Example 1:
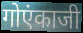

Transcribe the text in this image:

गोएंकाजी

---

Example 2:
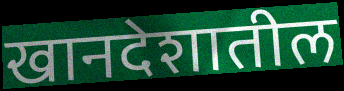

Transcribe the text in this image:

खानदेशातील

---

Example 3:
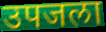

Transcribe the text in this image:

उपजला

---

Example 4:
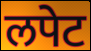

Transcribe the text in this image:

लपेट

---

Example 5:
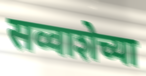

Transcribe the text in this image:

सव्वाशेच्या